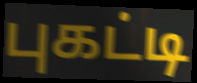
புகட்டி